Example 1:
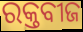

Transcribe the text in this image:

ରକ୍ତବୀଜ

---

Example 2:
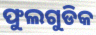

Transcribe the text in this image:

ଫୁଲଗୁଡିକ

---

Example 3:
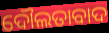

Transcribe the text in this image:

ଦୌଲତାବାଦ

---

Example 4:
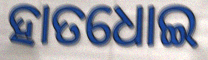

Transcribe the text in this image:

ହାତଧୋଇ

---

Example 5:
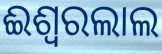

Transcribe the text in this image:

ଈଶ୍ଵରଲାଲ